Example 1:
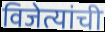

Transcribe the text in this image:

विजेत्यांची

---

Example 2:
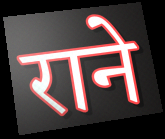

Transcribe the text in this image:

राने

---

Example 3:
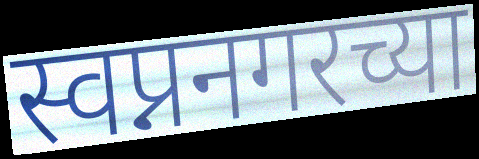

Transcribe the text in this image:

स्वप्ननगरच्या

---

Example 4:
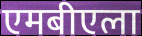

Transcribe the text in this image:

एमबीएला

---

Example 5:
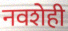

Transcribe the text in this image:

नवशेही